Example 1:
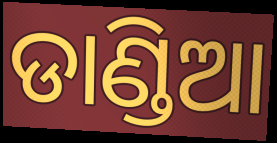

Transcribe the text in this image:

ଡାଣ୍ଡିଆ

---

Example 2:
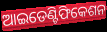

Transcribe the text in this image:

ଆଇଡେଣ୍ଟିଫିକେଶନ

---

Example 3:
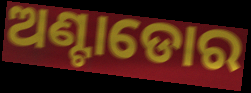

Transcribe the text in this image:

ଅଣ୍ଟାଡୋର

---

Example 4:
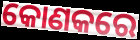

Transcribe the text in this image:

କୋଣକରେ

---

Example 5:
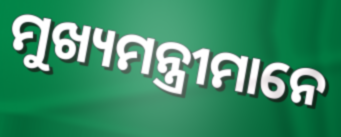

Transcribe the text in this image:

ମୁଖ୍ୟମନ୍ତ୍ରୀମାନେ